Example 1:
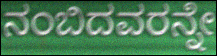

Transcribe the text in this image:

ನಂಬಿದವರನ್ನೇ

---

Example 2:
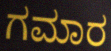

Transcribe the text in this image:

ಗಮಾರ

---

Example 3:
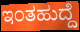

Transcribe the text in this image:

ಇಂತಹುದ್ದೆ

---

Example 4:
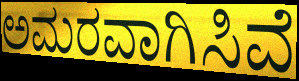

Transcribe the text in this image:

ಅಮರವಾಗಿಸಿವೆ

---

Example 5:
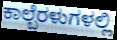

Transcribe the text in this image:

ಕಾಲ್ಬೆರಳುಗಳಲ್ಲಿ